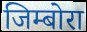
जिम्बोरा